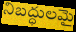
నిబద్ధులమై